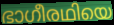
ഭാഗീരഥിയെ